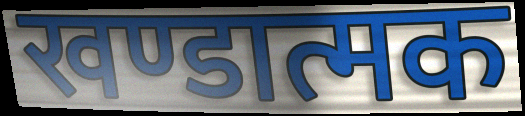
खण्डात्मक